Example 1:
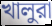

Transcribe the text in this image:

খালুরা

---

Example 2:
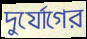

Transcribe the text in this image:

দুর্যোগের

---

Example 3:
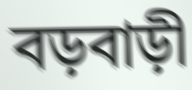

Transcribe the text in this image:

বড়বাড়ী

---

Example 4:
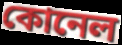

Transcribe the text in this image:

কোনেল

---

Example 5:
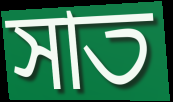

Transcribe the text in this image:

সাত